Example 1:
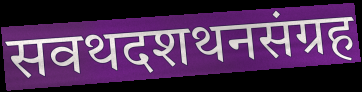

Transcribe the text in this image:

सवथदशथनसंग्रह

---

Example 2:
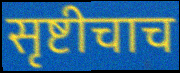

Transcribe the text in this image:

सृष्टीचाच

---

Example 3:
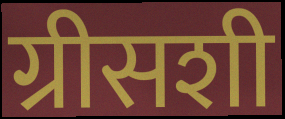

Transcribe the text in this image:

ग्रीसशी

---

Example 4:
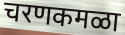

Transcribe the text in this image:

चरणकमळा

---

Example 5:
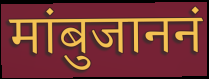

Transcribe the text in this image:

मांबुजाननं